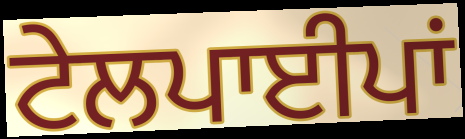
ਟੇਲਪਾਈਪਾਂ